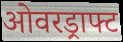
ओवरड्राफ्ट